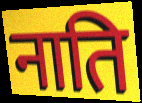
नाति